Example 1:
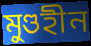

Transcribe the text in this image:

মুণ্ডহীন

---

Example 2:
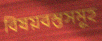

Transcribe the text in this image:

বিষয়বস্তুসমূহ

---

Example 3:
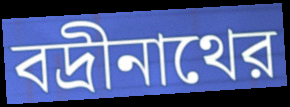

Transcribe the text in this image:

বদ্রীনাথের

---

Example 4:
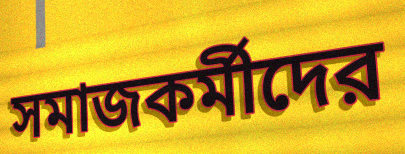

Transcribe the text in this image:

সমাজকর্মীদের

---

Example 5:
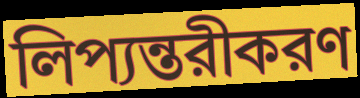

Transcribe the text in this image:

লিপ্যন্তরীকরণ